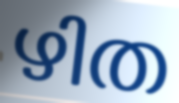
ഴിത